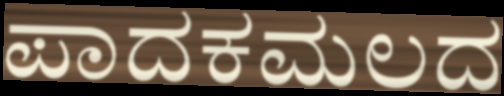
ಪಾದಕಮಲದ